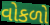
વોકળો